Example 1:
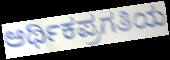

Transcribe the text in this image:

ಆರ್ಥಿಕಪ್ರಗತಿಯ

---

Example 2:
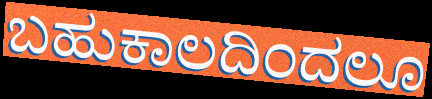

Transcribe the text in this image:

ಬಹುಕಾಲದಿಂದಲೂ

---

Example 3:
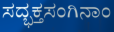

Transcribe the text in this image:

ಸದ್ಭಕ್ತಸಂಗಿನಾಂ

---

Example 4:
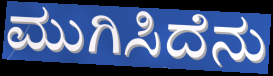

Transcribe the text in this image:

ಮುಗಿಸಿದೆನು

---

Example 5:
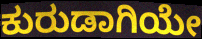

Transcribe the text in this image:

ಕುರುಡಾಗಿಯೇ